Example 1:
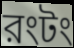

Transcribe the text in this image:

রংটং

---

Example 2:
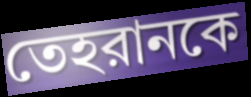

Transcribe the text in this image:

তেহরানকে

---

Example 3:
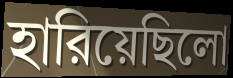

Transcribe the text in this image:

হারিয়েছিলো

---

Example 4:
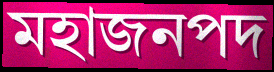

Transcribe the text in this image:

মহাজনপদ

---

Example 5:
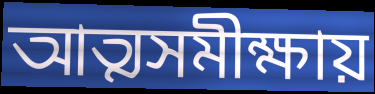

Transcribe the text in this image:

আত্মসমীক্ষায়